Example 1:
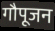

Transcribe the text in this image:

गौपूजन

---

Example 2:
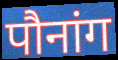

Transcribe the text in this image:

पौनांग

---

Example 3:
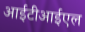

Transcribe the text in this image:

आईटीआईएल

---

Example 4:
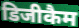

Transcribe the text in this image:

डिजीकैम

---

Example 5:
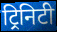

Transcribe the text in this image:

ट्रिनिटी